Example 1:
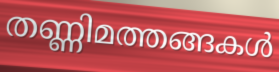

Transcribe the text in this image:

തണ്ണിമത്തങ്ങകൾ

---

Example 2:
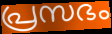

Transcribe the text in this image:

പ്രസഭം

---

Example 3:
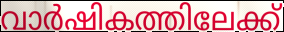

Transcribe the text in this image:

വാർഷികത്തിലേക്ക്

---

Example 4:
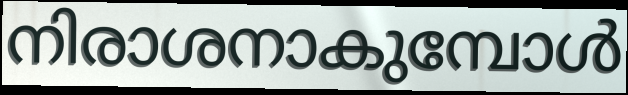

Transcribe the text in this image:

നിരാശനാകുമ്പോൾ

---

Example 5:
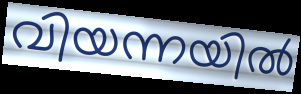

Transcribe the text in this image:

വിയന്നയിൽ